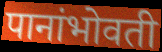
पानांभोवती